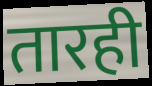
तारही